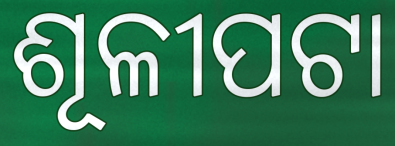
ଶୂଳୀପଟା